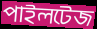
পাইলটেজ